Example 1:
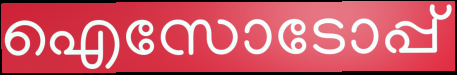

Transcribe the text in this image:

ഐസോടോപ്പ്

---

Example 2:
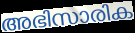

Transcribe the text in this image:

അഭിസാരിക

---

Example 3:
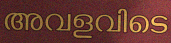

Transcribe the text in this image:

അവളവിടെ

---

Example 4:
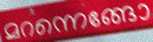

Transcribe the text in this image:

മറന്നെങ്ങോ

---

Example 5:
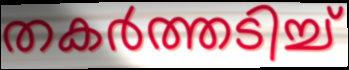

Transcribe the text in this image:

തകർത്തടിച്ച്